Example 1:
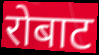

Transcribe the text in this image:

रोबाट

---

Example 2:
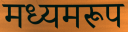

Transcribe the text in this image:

मध्यमरूप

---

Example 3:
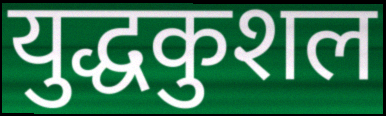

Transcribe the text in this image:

युद्धकुशल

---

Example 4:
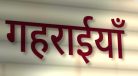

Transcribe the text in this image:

गहराईयाँ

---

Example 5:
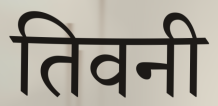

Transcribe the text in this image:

तिवनी